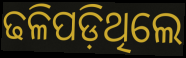
ଢଳିପଡ଼ିଥିଲେ